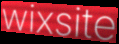
wixsite